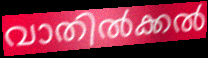
വാതിൽക്കൽ